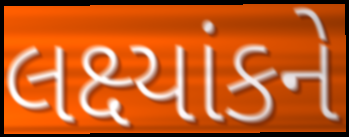
લક્ષ્યાંકને